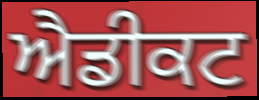
ਐਡੀਕਟ